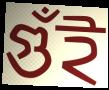
গুঁই